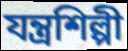
যন্ত্রশিল্পী